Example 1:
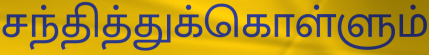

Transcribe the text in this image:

சந்தித்துக்கொள்ளும்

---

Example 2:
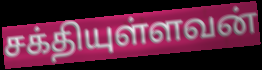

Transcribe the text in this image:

சக்தியுள்ளவன்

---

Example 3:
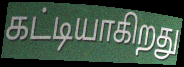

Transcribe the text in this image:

கட்டியாகிறது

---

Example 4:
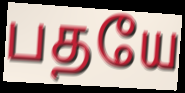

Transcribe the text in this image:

பதயே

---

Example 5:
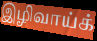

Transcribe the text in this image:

இழிவாய்க்